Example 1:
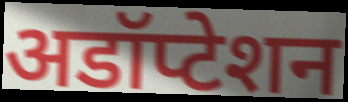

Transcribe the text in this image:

अडॉप्टेशन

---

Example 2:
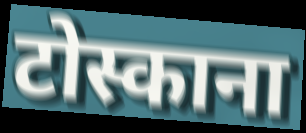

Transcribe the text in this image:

टोस्काना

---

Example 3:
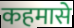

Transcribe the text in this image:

कहमासे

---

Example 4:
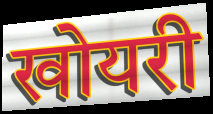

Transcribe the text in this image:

खोयरी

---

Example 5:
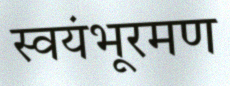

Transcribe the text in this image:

स्वयंभूरमण